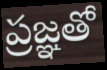
ప్రజ్ఞతో